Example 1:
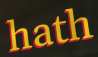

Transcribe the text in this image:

hath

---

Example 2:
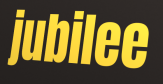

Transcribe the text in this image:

jubilee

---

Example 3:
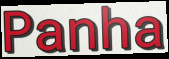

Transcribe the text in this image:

Panha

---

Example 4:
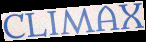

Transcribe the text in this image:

CLIMAX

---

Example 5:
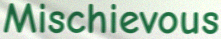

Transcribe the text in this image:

Mischievous